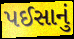
પઈસાનું